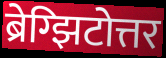
ब्रेग्झिटोत्तर